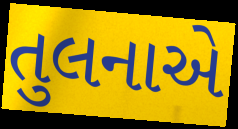
તુલનાએ